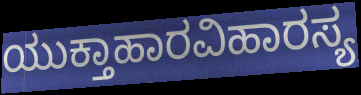
ಯುಕ್ತಾಹಾರವಿಹಾರಸ್ಯ